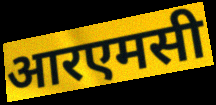
आरएमसी